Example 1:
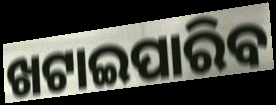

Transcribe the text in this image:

ଖଟାଇପାରିବ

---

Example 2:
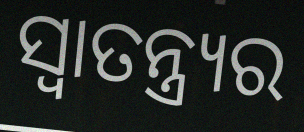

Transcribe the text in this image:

ସ୍ଵାତନ୍ତ୍ର୍ୟର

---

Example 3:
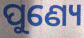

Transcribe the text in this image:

ପୁଣ୍ୟେ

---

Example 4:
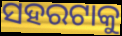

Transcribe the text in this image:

ସହରଟାକୁ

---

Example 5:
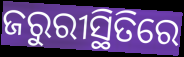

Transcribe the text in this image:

ଜରୁରୀସ୍ଥିତିରେ